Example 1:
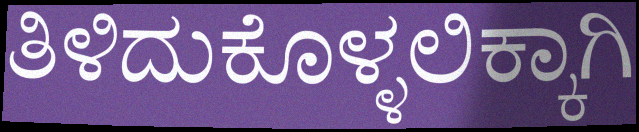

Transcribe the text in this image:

ತಿಳಿದುಕೊಳ್ಳಲಿಕ್ಕಾಗಿ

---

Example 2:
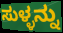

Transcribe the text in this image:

ಸುಳ್ಳನ್ನು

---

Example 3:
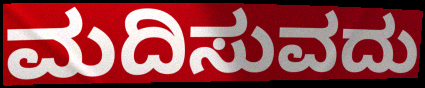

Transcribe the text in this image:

ಮದಿಸುವದು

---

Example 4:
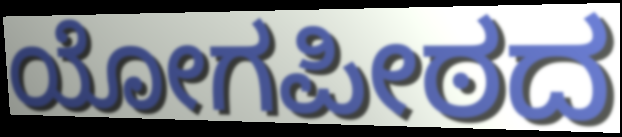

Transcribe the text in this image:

ಯೋಗಪೀಠದ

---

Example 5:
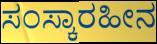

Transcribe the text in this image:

ಸಂಸ್ಕಾರಹೀನ